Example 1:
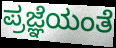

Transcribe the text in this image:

ಪ್ರಜ್ಞೆಯಂತೆ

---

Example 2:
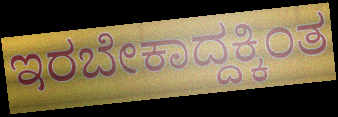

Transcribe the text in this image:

ಇರಬೇಕಾದ್ದಕ್ಕಿಂತ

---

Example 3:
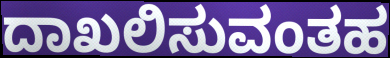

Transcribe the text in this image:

ದಾಖಲಿಸುವಂತಹ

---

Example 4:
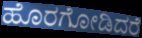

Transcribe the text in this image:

ಹೊರಗೋಡಿದರೆ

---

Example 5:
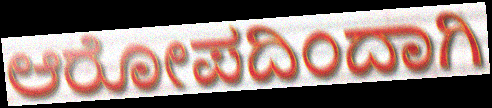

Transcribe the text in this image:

ಆರೋಪದಿಂದಾಗಿ